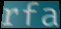
rfa